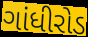
ગાંધીરોડ